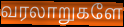
வரலாறுகளே